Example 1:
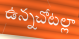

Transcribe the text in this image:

ఉన్నచోటల్లా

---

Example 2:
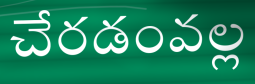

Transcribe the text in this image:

చేరడంవల్ల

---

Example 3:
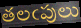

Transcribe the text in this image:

తలఁపులు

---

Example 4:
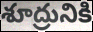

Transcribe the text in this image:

శూద్రునికి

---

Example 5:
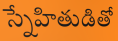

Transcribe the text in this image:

స్నేహితుడితో